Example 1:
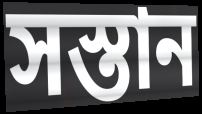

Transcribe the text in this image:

সস্তান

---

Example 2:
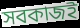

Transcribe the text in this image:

সবকাজই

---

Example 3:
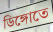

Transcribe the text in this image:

ডিঙ্গোতে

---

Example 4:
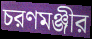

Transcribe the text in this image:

চরণমঞ্জীর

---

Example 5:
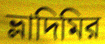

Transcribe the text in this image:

ভ্লাদিমির